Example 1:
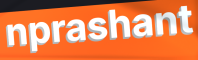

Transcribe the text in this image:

nprashant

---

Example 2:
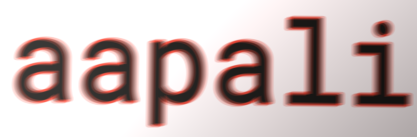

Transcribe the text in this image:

aapali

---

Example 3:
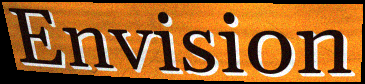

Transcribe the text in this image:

Envision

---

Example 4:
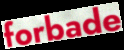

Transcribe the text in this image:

forbade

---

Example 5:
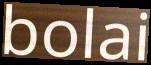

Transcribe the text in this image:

bolai